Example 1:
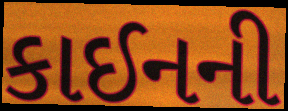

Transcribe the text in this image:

કાઈનની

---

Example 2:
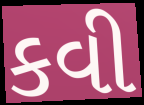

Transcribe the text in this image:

કવી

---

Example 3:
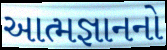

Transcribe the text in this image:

આત્મજ્ઞાનનો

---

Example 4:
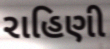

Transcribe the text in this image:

રાહિણી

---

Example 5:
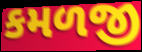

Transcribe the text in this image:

કમળજી